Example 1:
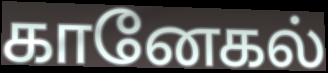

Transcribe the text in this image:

கானேகல்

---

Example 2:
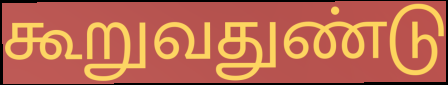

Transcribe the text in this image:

கூறுவதுண்டு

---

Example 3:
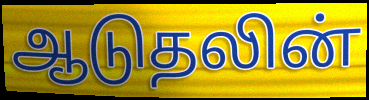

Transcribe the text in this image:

ஆடுதலின்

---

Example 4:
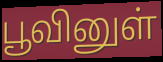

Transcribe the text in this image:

பூவினுள்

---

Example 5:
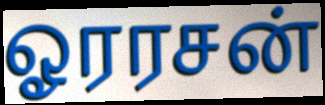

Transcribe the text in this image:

ஓரரசன்